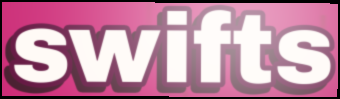
swifts